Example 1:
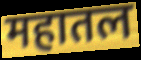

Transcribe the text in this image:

महातल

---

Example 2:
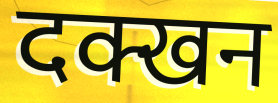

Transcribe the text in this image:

दक्खन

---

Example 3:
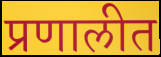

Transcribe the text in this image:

प्रणालीत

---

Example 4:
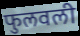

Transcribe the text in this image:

फुलवली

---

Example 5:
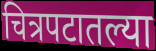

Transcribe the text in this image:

चित्रपटातल्या